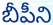
బీపీని